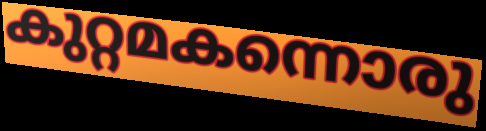
കുറ്റമകന്നൊരു